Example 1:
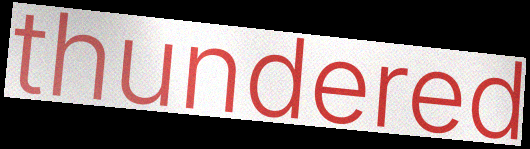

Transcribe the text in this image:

thundered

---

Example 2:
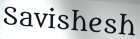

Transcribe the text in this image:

Savishesh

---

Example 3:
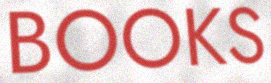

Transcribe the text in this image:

BOOKS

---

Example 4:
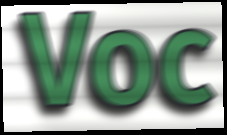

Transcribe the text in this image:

Voc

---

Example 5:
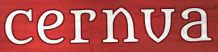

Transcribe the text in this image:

cernua